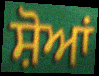
ਸ਼ੋਆਂ